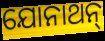
ଯୋନାଥନ୍